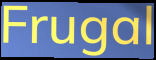
Frugal